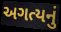
અગત્યનું